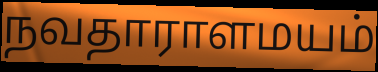
நவதாராளமயம்